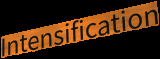
Intensification